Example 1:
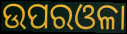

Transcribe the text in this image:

ଉପରଓଳା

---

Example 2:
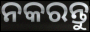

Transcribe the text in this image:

ନକରନ୍ତୁ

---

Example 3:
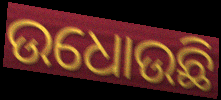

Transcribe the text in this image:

ଉଧୋଉଛି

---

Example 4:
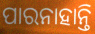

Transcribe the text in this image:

ପାରନାହାନ୍ତି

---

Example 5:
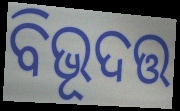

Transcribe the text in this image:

ବିଭୂଦତ୍ତ